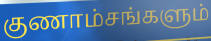
குணாம்சங்களும்